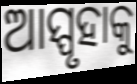
ଆସ୍ପୃହାକୁ